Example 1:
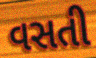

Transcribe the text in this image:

વસતી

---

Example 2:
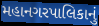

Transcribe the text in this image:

મહાનગરપાલિકાનું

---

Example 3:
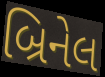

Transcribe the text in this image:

બ્રિનેલ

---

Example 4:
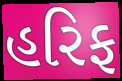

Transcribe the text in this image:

હરિફ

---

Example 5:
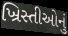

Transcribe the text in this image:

ખ્રિસ્તીઓનું